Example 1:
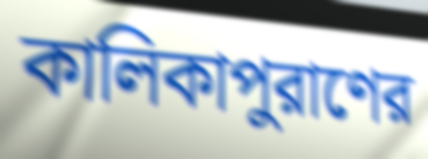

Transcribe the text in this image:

কালিকাপুরাণের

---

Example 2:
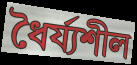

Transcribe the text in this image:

ধৈর্য্যশীল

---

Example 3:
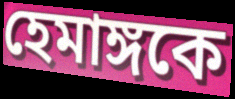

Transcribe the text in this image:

হেমাঙ্গকে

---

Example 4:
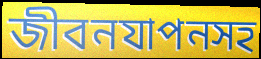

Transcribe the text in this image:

জীবনযাপনসহ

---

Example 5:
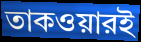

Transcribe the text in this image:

তাকওয়ারই